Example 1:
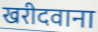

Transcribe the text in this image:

खरीदवाना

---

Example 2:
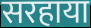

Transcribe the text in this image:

सरहाया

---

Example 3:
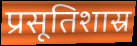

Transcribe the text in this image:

प्रसूतिशास्र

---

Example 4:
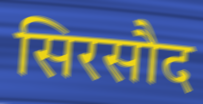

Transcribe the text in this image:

सिरसौद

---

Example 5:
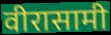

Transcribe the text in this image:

वीरासामी